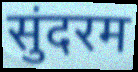
सुंदरम